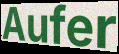
Aufer